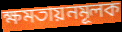
ক্ষমতায়নমূলক